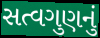
સત્વગુણનું